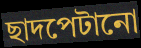
ছাদপেটানো